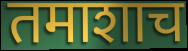
तमाशाच